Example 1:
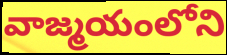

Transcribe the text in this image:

వాజ్మయంలోని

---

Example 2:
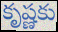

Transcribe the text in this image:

కృష్ణకు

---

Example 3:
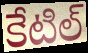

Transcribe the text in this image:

కేటిల్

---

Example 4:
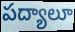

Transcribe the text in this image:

పద్యాలూ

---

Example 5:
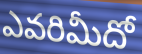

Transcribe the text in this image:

ఎవరిమీదో